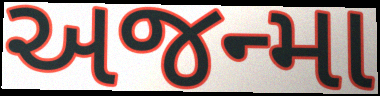
અજન્મા